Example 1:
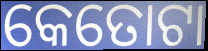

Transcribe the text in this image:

କେତୋଟା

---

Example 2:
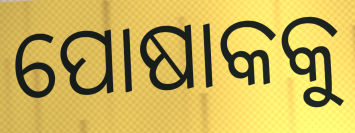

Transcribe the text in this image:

ପୋଷାକକୁ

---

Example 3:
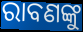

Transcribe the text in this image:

ରାବଣଙ୍କୁ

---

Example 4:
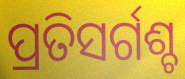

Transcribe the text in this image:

ପ୍ରତିସର୍ଗଶ୍ଚ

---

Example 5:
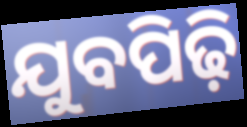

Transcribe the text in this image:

ଯୁବପିଢ଼ି